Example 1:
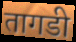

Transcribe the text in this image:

तागडी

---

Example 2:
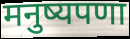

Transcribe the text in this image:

मनुष्यपणा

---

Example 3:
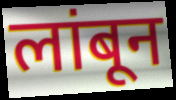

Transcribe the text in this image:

लांबून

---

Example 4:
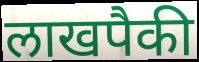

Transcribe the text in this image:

लाखपैकी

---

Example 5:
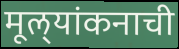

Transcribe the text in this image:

मूल्यांकनाची